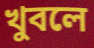
খুবলে